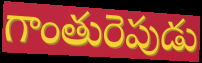
గాంతురెపుడు